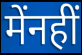
मेंनहीं